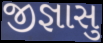
જીજ્ઞાસુ